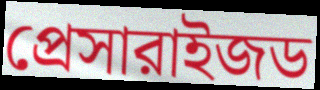
প্রেসারাইজড